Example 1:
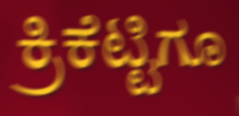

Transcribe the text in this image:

ಕ್ರಿಕೆಟ್ಟಿಗೂ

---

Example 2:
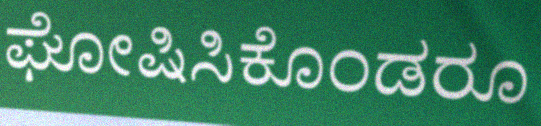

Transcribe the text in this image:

ಘೋಷಿಸಿಕೊಂಡರೂ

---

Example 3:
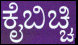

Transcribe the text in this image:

ಕೈಬಿಚ್ಚಿ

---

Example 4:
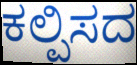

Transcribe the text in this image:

ಕಲ್ಪಿಸದ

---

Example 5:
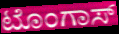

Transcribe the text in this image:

ಟೊಂಗಾಸ್